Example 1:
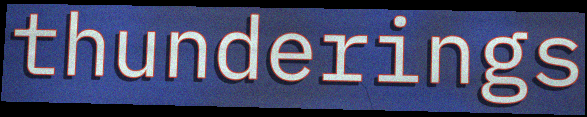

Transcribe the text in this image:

thunderings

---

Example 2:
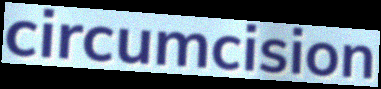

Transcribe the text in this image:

circumcision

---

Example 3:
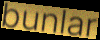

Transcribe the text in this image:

bunlar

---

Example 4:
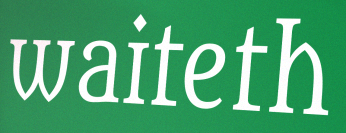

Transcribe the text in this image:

waiteth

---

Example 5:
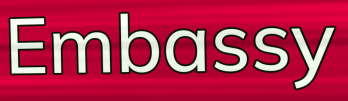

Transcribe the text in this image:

Embassy